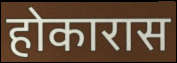
होकारास